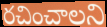
రచించాలని